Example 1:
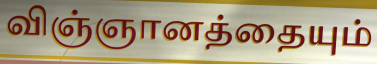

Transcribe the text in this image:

விஞ்ஞானத்தையும்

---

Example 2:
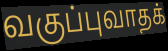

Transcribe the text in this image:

வகுப்புவாதக்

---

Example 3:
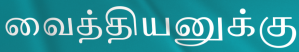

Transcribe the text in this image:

வைத்தியனுக்கு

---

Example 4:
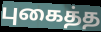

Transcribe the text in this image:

புகைத்த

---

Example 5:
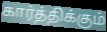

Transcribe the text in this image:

கார்த்திக்கும்